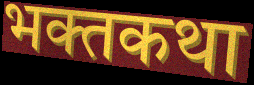
भक्तकथा